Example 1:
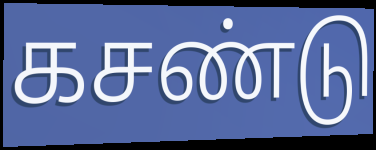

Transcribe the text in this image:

கசண்டு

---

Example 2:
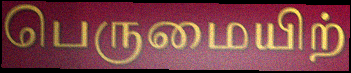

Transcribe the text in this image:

பெருமையிற்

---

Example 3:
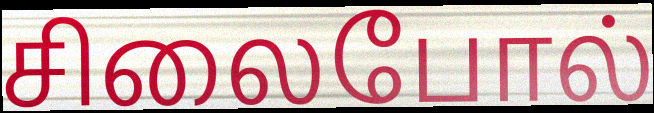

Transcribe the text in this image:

சிலைபோல்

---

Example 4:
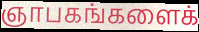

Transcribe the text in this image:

ஞாபகங்களைக்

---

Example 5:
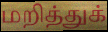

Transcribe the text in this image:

மறித்துக்